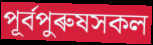
পূৰ্বপুৰুষসকল